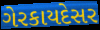
ગેરકાયદેસર